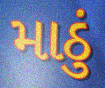
માઠું